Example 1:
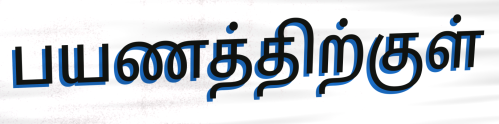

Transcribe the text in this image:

பயணத்திற்குள்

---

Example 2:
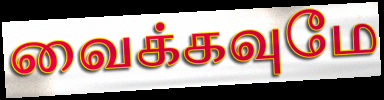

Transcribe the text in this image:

வைக்கவுமே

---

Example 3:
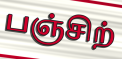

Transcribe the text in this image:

பஞ்சிற்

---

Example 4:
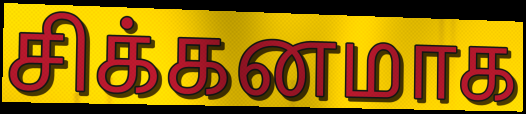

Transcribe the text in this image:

சிக்கனமாக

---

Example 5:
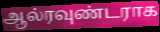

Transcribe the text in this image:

ஆல்ரவுண்டராக